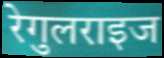
रेगुलराइज